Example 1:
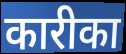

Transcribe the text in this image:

कारीका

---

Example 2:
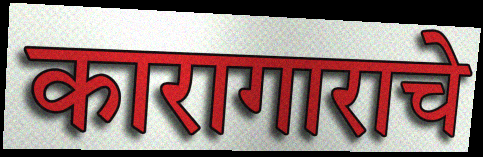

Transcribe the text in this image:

कारागाराचे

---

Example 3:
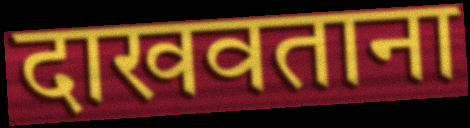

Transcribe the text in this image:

दाखवताना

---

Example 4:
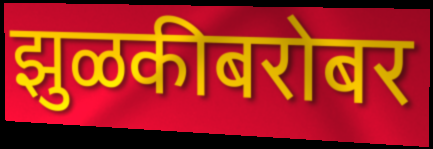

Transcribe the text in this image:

झुळकीबरोबर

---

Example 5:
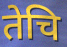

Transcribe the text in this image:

तेचि